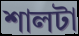
শালটা